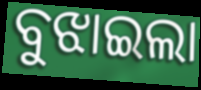
ବୁଝାଇଲା